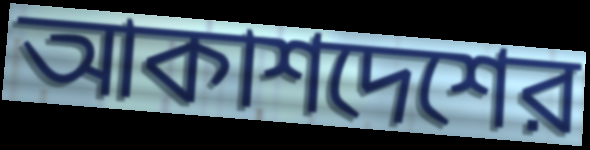
আকাশদেশের